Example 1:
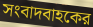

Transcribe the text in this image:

সংবাদবাহকের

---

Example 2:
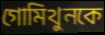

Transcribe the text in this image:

গোমিথুনকে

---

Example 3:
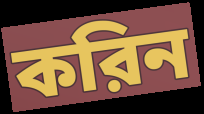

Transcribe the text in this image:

করিন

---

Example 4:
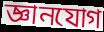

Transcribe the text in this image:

জ্ঞানযোগ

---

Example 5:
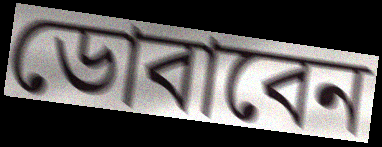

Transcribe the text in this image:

ডোবাবেন